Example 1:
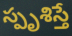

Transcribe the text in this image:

స్పృశిస్తే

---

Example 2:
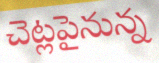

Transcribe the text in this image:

చెట్లపైనున్న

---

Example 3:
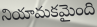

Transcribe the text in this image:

నియామకమైంది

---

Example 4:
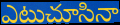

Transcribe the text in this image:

ఎటుచూసినా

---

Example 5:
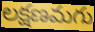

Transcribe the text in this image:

లక్షణమగు